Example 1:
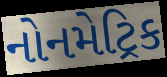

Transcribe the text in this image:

નોનમેટ્રિક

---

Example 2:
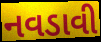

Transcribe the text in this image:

નવડાવી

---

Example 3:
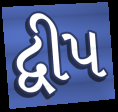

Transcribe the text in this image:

દ્વીપ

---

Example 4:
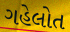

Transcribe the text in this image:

ગહેલોત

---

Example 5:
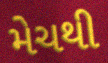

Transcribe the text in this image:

મેચથી